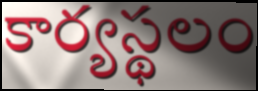
కార్యస్థలం